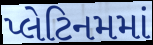
પ્લેટિનમમાં